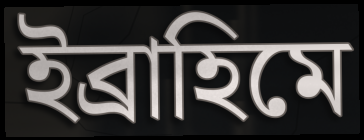
ইব্ৰাহিমে